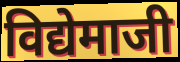
विद्येमाजी